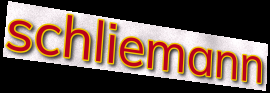
schliemann